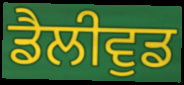
ਡੈਲੀਵੁਡ